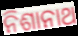
ନିଶାନାଥ